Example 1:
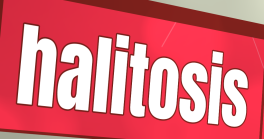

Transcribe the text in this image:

halitosis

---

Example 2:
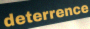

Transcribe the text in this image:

deterrence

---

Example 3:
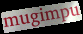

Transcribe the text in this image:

mugimpu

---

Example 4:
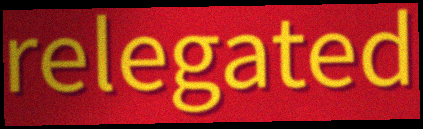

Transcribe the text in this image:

relegated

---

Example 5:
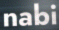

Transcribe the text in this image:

nabi